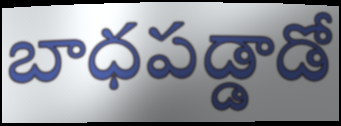
బాధపడ్డాడో